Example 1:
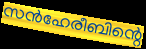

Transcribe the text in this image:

സൻഹേരീബിന്റെ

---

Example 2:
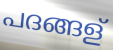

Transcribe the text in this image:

പദങ്ങള്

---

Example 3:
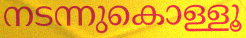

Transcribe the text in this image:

നടന്നുകൊള്ളൂ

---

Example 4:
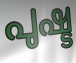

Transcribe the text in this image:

പുഷ്ട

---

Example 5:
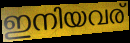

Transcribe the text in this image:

ഇനിയവര്